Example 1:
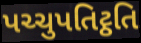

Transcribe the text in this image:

પચ્ચુપતિટ્ઠતિ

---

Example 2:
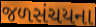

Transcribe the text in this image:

જળસંચયના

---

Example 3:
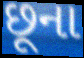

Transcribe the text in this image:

છૂના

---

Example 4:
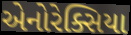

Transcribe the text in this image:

એનોરેક્સિયા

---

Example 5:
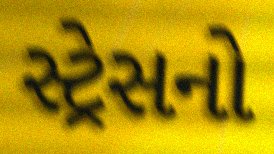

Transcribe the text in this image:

સ્ટ્રેસનો